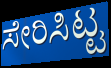
ಸೇರಿಸಿಟ್ಟ